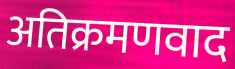
अतिक्रमणवाद